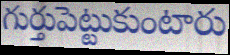
గుర్తుపెట్టుకుంటారు